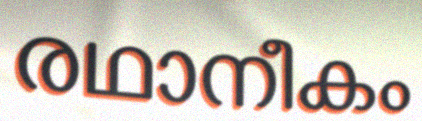
രഥാനീകം